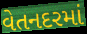
વેતનદરમાં